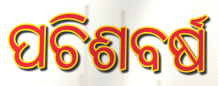
ପଚିଶବର୍ଷ